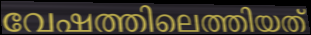
വേഷത്തിലെത്തിയത്